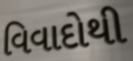
વિવાદોથી